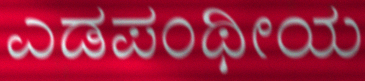
ಎಡಪಂಥೀಯ